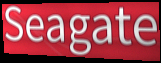
Seagate